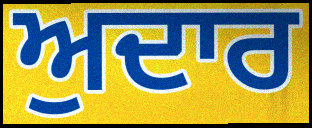
ਅੁਦਾਰ